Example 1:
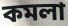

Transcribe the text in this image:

কমলা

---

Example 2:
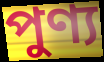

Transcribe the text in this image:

পুণ্য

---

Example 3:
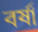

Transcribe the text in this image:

বৰ্ষা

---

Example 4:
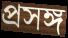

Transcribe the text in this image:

প্ৰসঙ্গ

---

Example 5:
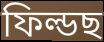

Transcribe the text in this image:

ফিল্ডছ